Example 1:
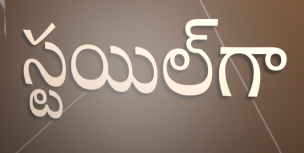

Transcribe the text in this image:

స్టయిల్‌గా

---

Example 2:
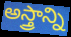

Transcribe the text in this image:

అస్త్రాన్ని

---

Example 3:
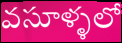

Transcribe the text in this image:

వసూళ్ళలో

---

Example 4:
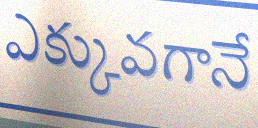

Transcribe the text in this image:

ఎక్కువగానే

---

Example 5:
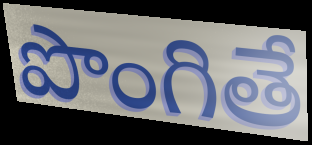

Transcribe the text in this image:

పొంగితే